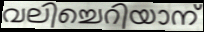
വലിച്ചെറിയാന്